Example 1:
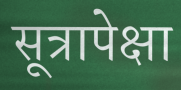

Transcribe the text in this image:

सूत्रापेक्षा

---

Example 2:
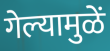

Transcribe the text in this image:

गेल्यामुळें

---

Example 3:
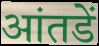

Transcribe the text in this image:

आंतडें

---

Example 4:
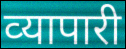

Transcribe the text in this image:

व्‍यापारी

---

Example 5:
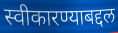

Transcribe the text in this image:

स्वीकारण्याबद्दल